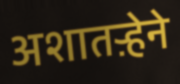
अशातऱ्‍हेने